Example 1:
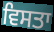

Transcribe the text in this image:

ਵਿਸਤਾ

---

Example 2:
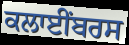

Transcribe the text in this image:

ਕਲਾਈਂਬਰਸ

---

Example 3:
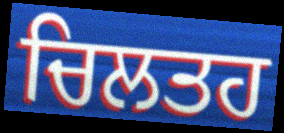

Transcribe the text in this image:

ਚਿਲਤਹ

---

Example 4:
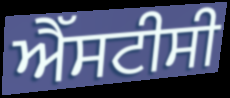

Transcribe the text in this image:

ਐੱਸਟੀਸੀ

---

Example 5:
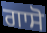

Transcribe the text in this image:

ਗਾਸੋ